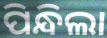
ପିନ୍ଧିଲା